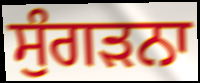
ਸੁੰਗੜਨਾ